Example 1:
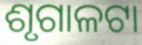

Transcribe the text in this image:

ଶୃଗାଳଟା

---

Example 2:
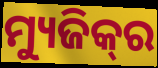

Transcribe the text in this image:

ମ୍ୟୁଜିକ୍‌ର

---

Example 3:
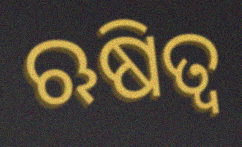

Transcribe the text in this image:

ଋଷିତ୍ୱ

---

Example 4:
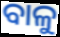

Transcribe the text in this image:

ବାଳୁ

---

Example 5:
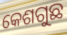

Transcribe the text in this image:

କେଶଗୁଛ